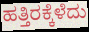
ಹತ್ತಿರಕ್ಕೆಳೆದು